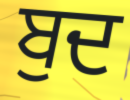
ਬੁਦ